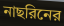
নাছরিনের